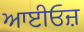
ਆਈਓਜ਼